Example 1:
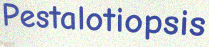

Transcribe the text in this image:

Pestalotiopsis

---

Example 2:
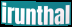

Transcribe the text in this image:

irunthal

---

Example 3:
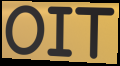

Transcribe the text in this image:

OIT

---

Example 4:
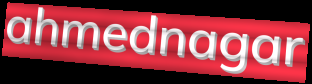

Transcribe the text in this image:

ahmednagar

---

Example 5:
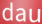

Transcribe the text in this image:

dau